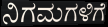
ನಿಗಮಗಳಿಗೆ